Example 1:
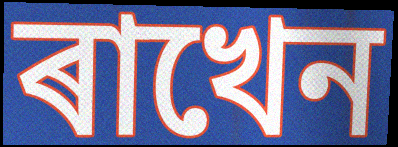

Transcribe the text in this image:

ৰাখেন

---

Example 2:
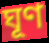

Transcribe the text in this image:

ঘূণ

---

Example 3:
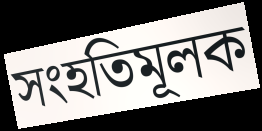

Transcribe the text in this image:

সংহতিমূলক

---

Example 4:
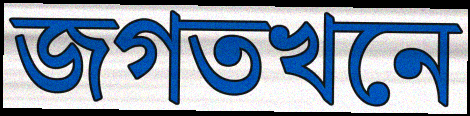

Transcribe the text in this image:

জগতখনে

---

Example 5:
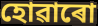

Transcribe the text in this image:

হোৱাৰো